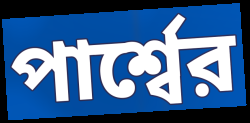
পার্শ্বের